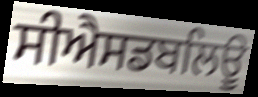
ਸੀਐਸਡਬਲਿਊ